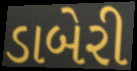
ડાબેરી